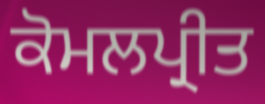
ਕੋਮਲਪ੍ਰੀਤ